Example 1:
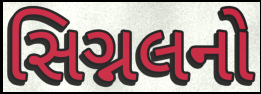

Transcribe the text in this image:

સિગ્નલનો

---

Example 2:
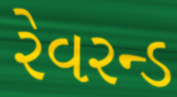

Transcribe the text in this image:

રેવરન્ડ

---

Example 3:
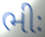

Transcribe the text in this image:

ભીઃ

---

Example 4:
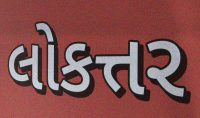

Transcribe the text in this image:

લોકત્તર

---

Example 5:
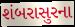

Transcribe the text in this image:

શંબરાસુરના